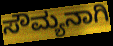
ಸೌಮ್ಯನಾಗಿ